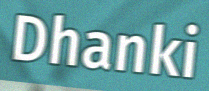
Dhanki